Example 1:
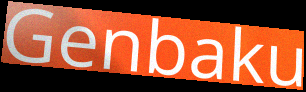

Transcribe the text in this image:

Genbaku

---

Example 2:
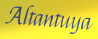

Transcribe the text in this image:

Altantuya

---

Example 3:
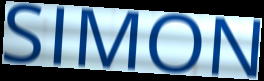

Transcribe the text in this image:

SIMON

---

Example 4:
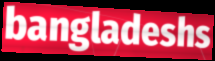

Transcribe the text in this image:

bangladeshs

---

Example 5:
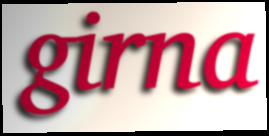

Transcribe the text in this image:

girna